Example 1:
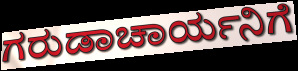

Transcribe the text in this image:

ಗರುಡಾಚಾರ್ಯನಿಗೆ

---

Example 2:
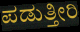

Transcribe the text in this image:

ಪಡುತ್ತೀರಿ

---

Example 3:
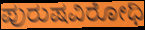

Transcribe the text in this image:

ಪುರುಷವಿರೋಧಿ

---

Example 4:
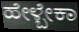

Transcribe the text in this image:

ಹೇಳ್ಬೇಕಾ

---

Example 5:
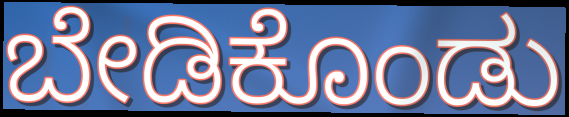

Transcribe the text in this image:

ಬೇಡಿಕೊಂಡು